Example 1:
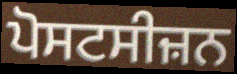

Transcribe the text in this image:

ਪੋਸਟਸੀਜ਼ਨ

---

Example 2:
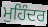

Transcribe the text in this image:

ਮੁਹਿੰਦਰ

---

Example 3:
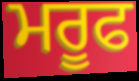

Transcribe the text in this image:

ਮਰੂਫ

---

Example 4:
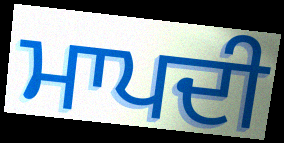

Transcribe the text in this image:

ਮਾਪਦੀ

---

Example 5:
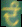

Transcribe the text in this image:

ਦੰ